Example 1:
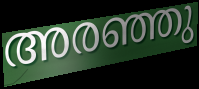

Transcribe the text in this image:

അരഞ്ഞു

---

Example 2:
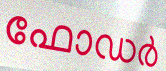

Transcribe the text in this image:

ഫോഡർ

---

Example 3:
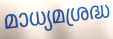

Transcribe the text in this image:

മാധ്യമശ്രദ്ധ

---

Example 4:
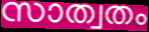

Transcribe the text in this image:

സാത്വതം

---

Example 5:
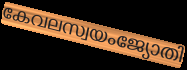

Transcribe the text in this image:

കേവലസ്വയംജ്യോതി